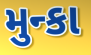
મુન્કા